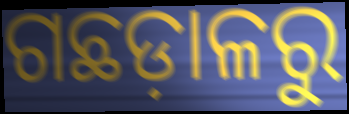
ଗଛଡ଼ାଳରୁ